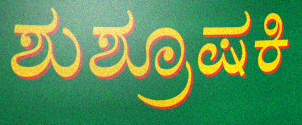
ಶುಶ್ರೂಷಕಿ